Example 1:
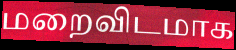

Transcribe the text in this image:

மறைவிடமாக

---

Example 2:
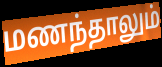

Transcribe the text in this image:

மணந்தாலும்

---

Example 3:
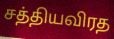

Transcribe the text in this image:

சத்தியவிரத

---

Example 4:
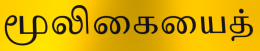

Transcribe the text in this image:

மூலிகையைத்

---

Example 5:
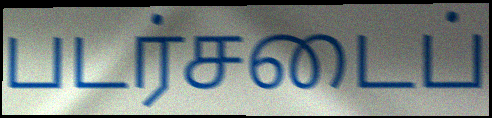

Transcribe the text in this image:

படர்சடைப்